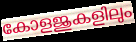
കോളജുകളിലും